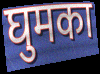
घुमका